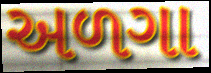
અળગા